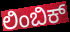
ಲಿಂಬಿಕ್